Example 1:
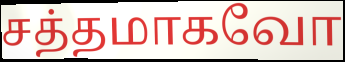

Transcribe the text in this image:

சத்தமாகவோ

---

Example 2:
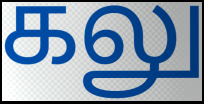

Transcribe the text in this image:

கலு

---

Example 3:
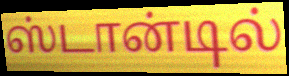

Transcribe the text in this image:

ஸ்டான்டில்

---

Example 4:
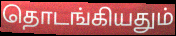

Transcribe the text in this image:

தொடங்கியதும்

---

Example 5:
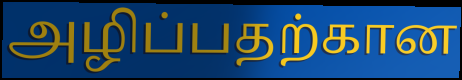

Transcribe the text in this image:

அழிப்பதற்கான